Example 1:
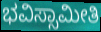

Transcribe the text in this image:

ಭವಿಸ್ಸಾಮೀತಿ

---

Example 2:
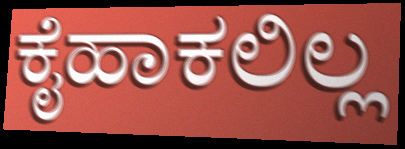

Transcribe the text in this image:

ಕೈಹಾಕಲಿಲ್ಲ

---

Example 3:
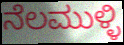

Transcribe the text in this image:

ನೆಲಮುಳ್ಳಿ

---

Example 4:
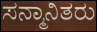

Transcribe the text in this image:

ಸನ್ಮಾನಿತರು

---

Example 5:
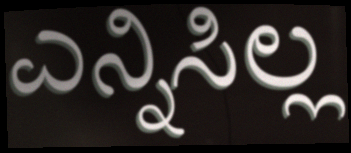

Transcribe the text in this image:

ಎನ್ನಿಸಿಲ್ಲ